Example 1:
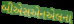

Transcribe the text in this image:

બીએસએનએલના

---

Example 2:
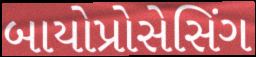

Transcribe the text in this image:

બાયોપ્રોસેસિંગ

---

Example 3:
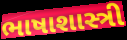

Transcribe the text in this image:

ભાષાશાસ્ત્રી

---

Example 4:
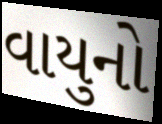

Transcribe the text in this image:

વાયુનો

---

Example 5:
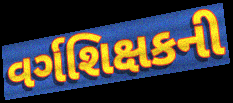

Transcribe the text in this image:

વર્ગશિક્ષકની